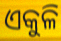
ଏକୁଳି